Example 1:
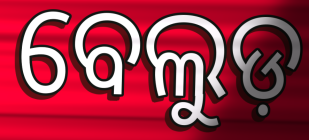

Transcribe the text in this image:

ବେଲୁଡ଼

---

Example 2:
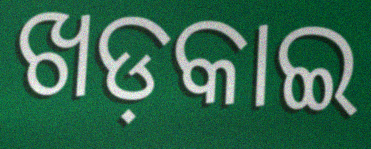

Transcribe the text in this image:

ଖଡ଼କାଇ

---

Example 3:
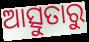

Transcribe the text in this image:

ଆତ୍ସୁତାରୁ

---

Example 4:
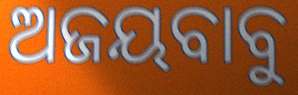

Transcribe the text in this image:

ଅଜୟବାବୁ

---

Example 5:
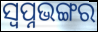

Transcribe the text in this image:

ସ୍ୱପ୍ନଭଙ୍ଗର